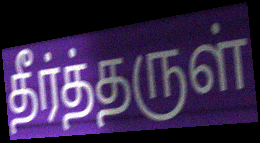
தீர்த்தருள்